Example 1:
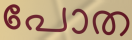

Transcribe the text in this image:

പോത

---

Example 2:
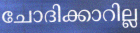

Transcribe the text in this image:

ചോദിക്കാറില്ല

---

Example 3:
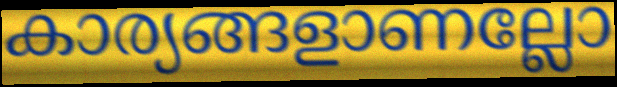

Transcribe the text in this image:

കാര്യങ്ങളാണല്ലോ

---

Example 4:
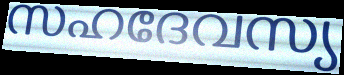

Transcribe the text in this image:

സഹദേവസ്യ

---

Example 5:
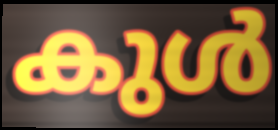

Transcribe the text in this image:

കുൾ